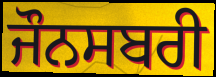
ਜੌਨਸਬਰੀ